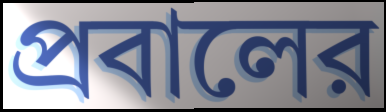
প্রবালের